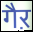
गैऱ